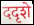
ददृशे